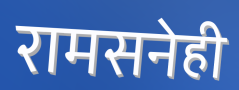
रामसनेही